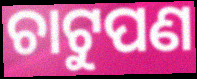
ଚାଟୁପଣ